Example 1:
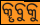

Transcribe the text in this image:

କୄବୁକୁ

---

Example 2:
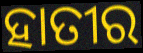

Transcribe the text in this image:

ହାତୀର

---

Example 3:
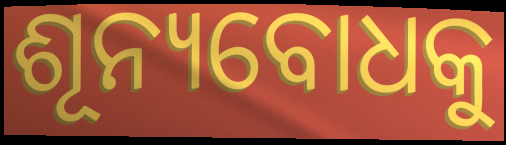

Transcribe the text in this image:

ଶୂନ୍ୟବୋଧକୁ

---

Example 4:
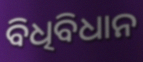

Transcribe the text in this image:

ବିଧିବିଧାନ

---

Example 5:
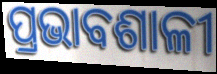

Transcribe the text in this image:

ପ୍ରଭାବଶାଳୀ